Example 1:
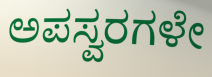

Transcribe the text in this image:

ಅಪಸ್ವರಗಳೇ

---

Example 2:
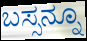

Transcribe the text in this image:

ಬಸ್ಸನ್ನೂ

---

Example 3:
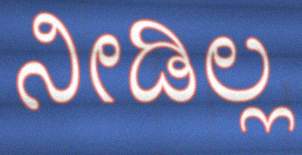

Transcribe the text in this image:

ನೀಡಿಲ್ಲ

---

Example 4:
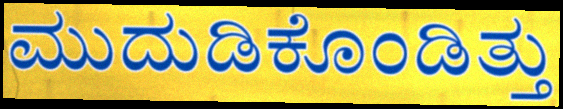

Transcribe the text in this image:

ಮುದುಡಿಕೊಂಡಿತ್ತು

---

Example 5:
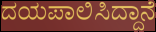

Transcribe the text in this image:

ದಯಪಾಲಿಸಿದ್ದಾನೆ